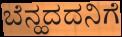
ಬೆನ್ಹದದನಿಗೆ